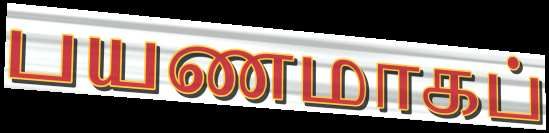
பயணமாகப்